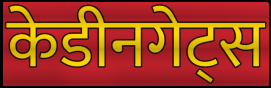
केडीनगेट्स